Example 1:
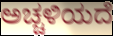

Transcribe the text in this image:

ಅಚ್ಚಳಿಯದೆ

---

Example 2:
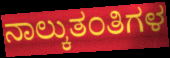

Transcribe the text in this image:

ನಾಲ್ಕುತಂತಿಗಳ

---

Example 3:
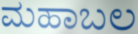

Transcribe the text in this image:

ಮಹಾಬಲ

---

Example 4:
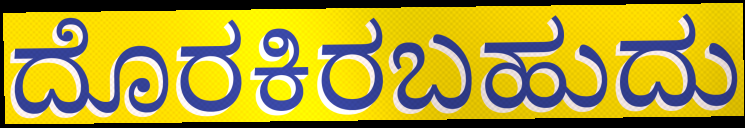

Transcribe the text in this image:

ದೊರಕಿರಬಹುದು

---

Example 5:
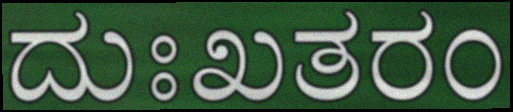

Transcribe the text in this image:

ದುಃಖತರಂ